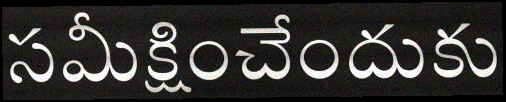
సమీక్షించేందుకు